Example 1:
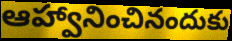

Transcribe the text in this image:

ఆహ్వానించినందుకు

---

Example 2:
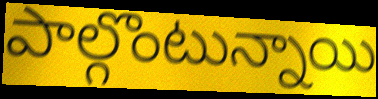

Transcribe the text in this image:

పాల్గొంటున్నాయి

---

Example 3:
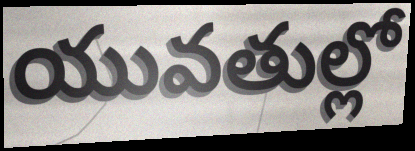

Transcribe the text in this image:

యువతుల్లో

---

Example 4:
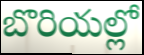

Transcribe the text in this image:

బొరియల్లో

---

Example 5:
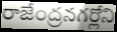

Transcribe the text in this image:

రాజేంద్రనగర్లోని